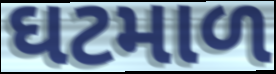
ઘટમાળ